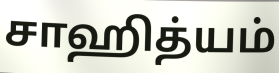
சாஹித்யம்